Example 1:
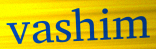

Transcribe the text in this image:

vashim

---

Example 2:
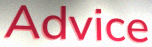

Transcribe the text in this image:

Advice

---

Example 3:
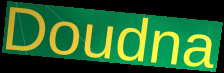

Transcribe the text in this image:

Doudna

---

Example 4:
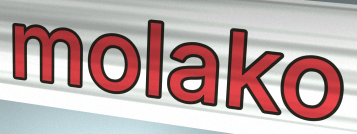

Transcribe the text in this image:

molako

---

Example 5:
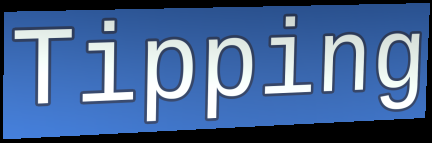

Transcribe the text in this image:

Tipping